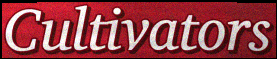
Cultivators